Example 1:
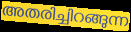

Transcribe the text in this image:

അതരിച്ചിറങ്ങുന്ന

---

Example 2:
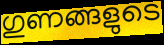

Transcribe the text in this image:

ഗുണങ്ങളുടെ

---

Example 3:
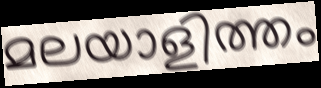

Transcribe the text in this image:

മലയാളിത്തം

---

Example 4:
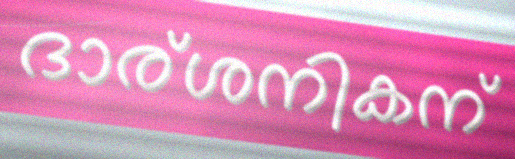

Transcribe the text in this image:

ദാര്ശനികന്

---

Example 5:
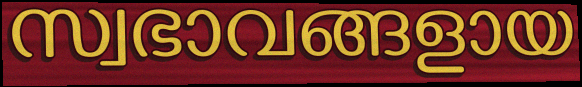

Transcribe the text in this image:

സ്വഭാവങ്ങളായ